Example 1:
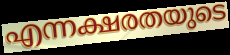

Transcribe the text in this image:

എന്നക്ഷരതയുടെ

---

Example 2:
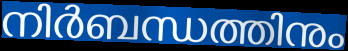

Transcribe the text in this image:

നിർബന്ധത്തിനും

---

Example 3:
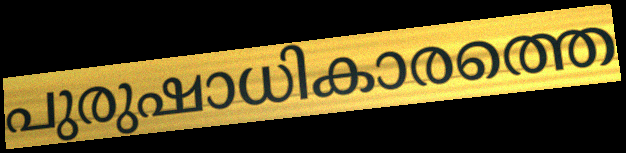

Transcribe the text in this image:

പുരുഷാധികാരത്തെ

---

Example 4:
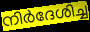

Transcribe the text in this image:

നിർദേശിച്ച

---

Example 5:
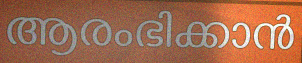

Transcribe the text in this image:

ആരംഭിക്കാൻ